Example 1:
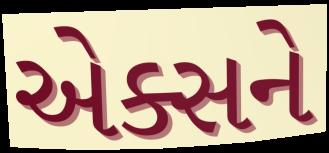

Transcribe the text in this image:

એક્સને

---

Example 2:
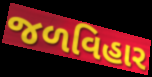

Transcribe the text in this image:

જળવિહાર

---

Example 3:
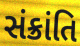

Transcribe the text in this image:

સંક્રાંતિ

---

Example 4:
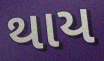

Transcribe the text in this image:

થાય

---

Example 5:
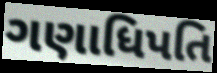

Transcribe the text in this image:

ગણાધિપતિ